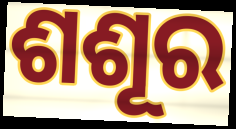
ଶଶୂର